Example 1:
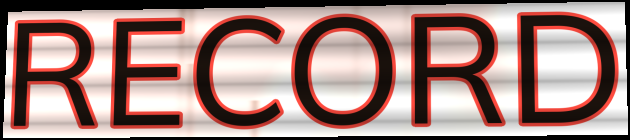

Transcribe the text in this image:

RECORD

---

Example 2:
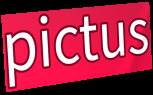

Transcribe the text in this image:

pictus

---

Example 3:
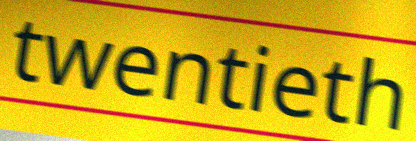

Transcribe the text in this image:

twentieth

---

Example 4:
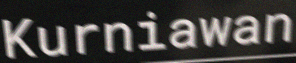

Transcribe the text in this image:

Kurniawan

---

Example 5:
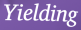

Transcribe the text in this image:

Yielding